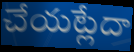
చేయట్లేదా